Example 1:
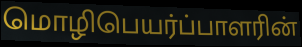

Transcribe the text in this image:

மொழிபெயர்ப்பாளரின்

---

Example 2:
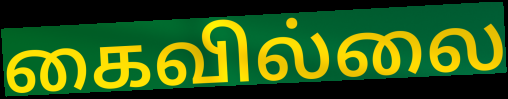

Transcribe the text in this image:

கைவில்லை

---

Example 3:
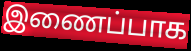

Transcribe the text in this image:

இணைப்பாக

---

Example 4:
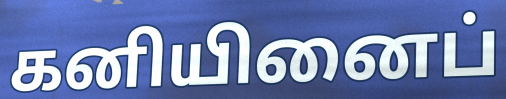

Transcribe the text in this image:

கனியினைப்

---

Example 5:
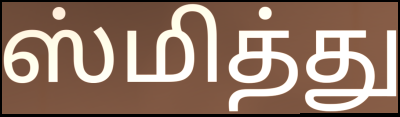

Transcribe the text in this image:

ஸ்மித்து